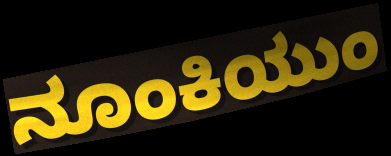
ನೂಂಕಿಯುಂ